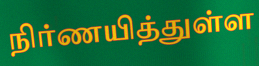
நிர்ணயித்துள்ள